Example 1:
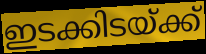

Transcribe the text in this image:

ഇടക്കിടയ്ക്ക്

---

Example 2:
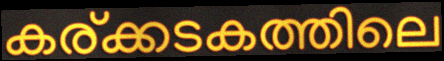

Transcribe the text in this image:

കര്ക്കടകത്തിലെ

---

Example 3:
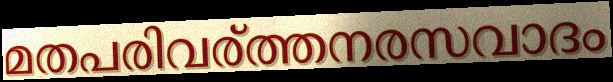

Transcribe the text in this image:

മതപരിവര്ത്തനരസവാദം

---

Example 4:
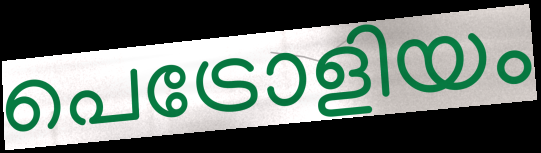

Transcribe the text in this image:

പെട്രോളിയം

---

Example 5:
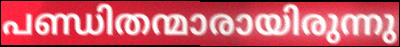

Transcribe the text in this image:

പണ്ഡിതന്മാരായിരുന്നു